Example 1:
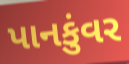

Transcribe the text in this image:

પાનકુંવર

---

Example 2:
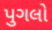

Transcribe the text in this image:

પુગલો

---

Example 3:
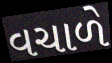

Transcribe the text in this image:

વચાળે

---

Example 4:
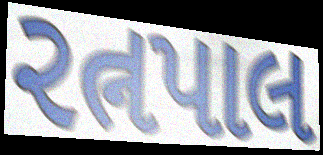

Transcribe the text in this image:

રત્નપાલ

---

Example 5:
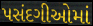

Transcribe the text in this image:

પસંદગીઓમાં